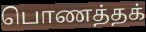
பொணத்தக்